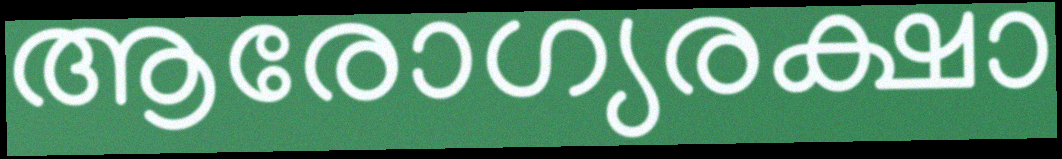
ആരോഗ്യരക്ഷാ